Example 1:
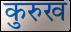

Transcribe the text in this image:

कुरुख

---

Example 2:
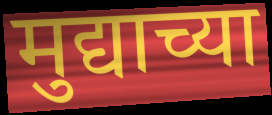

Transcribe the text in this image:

मुद्याच्या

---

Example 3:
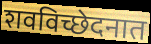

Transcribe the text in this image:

शवविच्छेदनात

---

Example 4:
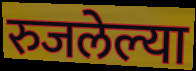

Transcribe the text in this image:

रुजलेल्या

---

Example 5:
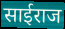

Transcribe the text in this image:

साईराज